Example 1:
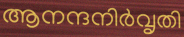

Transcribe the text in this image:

ആനന്ദനിർവൃതി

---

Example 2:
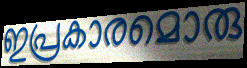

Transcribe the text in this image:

ഇപ്രകാരമൊരു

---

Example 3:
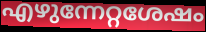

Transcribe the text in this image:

എഴുന്നേറ്റശേഷം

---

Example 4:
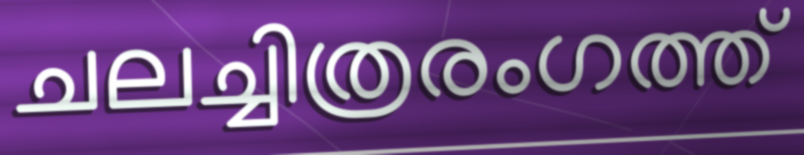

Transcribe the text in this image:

ചലച്ചിത്രരംഗത്ത്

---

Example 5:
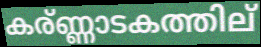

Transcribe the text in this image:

കര്ണ്ണാടകത്തില്